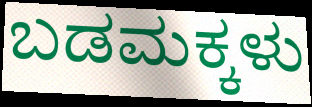
ಬಡಮಕ್ಕಳು